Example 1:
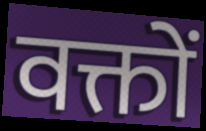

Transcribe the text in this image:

वक्तों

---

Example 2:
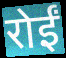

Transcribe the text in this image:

रोईं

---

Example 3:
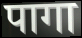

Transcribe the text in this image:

पागा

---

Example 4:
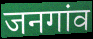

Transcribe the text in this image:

जनगांव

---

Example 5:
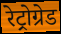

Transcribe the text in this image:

रेट्रोग्रेड